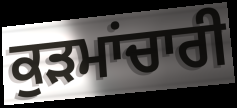
ਕੁੜਮਾਂਚਾਰੀ